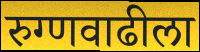
रुग्णवाढीला